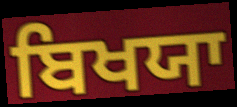
ਬਿਖਯਾ